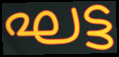
ഘട്ട